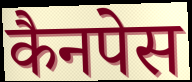
कैनपेस